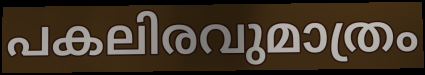
പകലിരവുമാത്രം